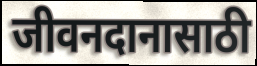
जीवनदानासाठी